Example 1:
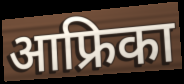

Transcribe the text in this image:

आफ्रिका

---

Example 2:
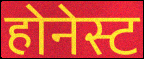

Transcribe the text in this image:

होनेस्ट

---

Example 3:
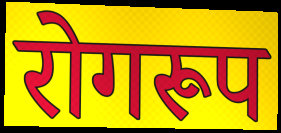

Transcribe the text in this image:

रोगरूप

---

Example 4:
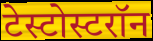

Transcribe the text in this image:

टेस्टोस्टरॉन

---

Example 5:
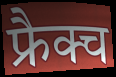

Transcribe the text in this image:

फ्रैक्च